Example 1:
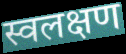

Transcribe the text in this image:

स्वलक्षण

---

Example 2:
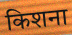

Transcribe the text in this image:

किशना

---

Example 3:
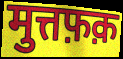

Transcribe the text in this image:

मुत्तफ़क़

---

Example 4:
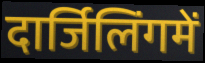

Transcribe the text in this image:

दार्जिलिंगमें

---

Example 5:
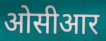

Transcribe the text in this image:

ओसीआर